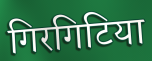
गिरगिटिया